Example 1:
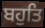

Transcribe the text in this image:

ਬਹੁਤਿ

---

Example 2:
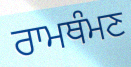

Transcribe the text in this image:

ਰਾਮਥੰਮਣ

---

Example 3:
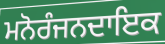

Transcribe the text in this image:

ਮਨੋਰੰਜਨਦਾਇਕ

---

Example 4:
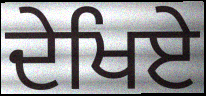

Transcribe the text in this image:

ਦੇਖਿਏ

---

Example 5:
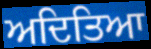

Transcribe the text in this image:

ਅਦਿਤਿਆ